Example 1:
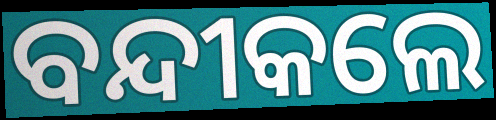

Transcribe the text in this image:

ବନ୍ଦୀକଲେ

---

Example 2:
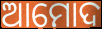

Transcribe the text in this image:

ଆମୋଦ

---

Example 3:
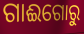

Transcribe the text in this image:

ଗାଈଗୋରୁ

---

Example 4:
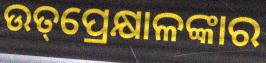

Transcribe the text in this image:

ଉତ୍‌ପ୍ରେକ୍ଷାଳଙ୍କାର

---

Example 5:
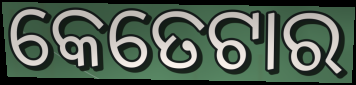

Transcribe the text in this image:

କେତେଟାର